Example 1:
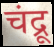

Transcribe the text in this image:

चंद्रू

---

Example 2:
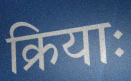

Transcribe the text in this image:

क्रियाः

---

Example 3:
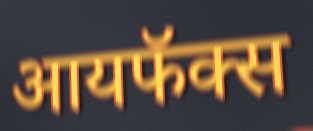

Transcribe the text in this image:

आयफॅक्स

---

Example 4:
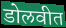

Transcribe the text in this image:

डोलवीत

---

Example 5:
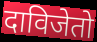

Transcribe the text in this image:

दाविजेतो